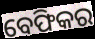
ବେଫିକର